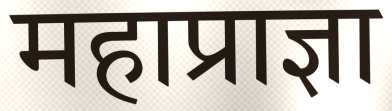
महाप्राज्ञा